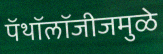
पॅथॉलॉजीजमुळे